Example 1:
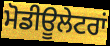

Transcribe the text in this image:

ਮੋਡੀਊਲੇਟਰਾਂ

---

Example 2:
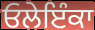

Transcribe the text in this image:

ਓਲੇਇੰਕਾ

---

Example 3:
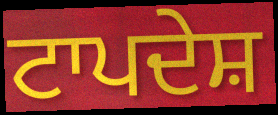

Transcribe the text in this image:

ਟਾਪਦੇਸ਼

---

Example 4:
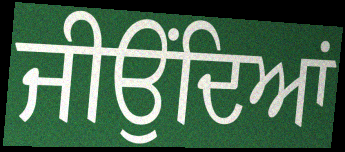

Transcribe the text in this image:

ਜੀਉਂਦਿਆਂ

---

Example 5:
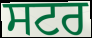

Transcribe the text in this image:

ਸਟਰ